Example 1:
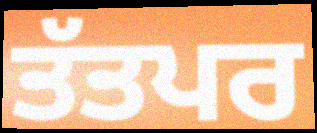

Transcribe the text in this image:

ਤੱਤਪਰ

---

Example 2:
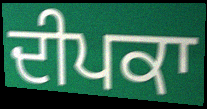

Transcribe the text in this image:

ਦੀਪਕਾ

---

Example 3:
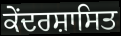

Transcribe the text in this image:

ਕੇਂਦਰਸ਼ਾਸਿਤ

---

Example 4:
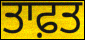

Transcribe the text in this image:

ਤਾਫ਼ਤ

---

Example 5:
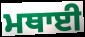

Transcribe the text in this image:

ਮਥਾਈ